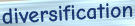
diversification